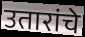
उतारांचे